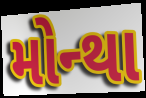
મોન્થા